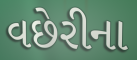
વછેરીના